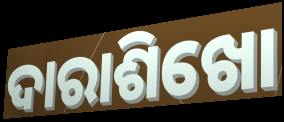
ଦାରାଶିଖୋ